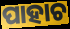
ପାହାଚ